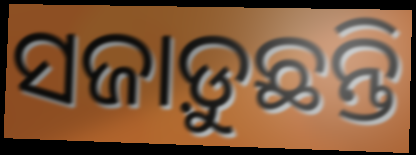
ସଜାଡ଼ୁଛନ୍ତି